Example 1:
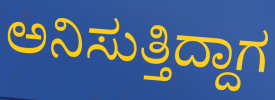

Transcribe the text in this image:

ಅನಿಸುತ್ತಿದ್ದಾಗ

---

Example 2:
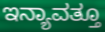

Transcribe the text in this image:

ಇನ್ಯಾವತ್ತೂ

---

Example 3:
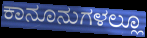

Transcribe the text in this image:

ಕಾನೂನುಗಳಲ್ಲೂ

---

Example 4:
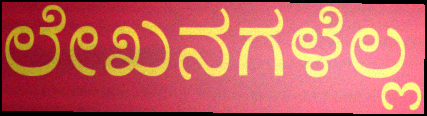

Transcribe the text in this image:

ಲೇಖನಗಳೆಲ್ಲ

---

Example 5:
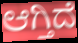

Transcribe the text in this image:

ಆಗ್ತಿದೆ